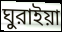
ঘুরাইয়া